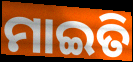
ମାଇତି